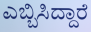
ಎಬ್ಬಿಸಿದ್ದಾರೆ